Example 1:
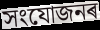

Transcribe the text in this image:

সংযোজনৰ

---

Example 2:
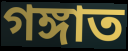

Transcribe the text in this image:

গঙ্গাত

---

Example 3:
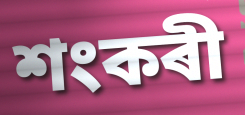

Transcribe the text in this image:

শংকৰী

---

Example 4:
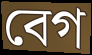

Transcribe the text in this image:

বেগ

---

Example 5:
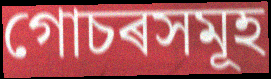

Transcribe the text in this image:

গোচৰসমূহ